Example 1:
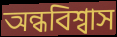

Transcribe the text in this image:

অন্ধবিশ্বাস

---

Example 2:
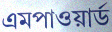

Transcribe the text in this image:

এমপাওয়ার্ড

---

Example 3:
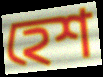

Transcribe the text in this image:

হেশ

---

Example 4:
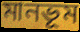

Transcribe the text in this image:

মানভূম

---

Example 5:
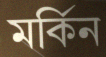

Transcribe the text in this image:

মর্কিন